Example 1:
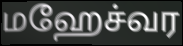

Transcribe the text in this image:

மஹேச்வர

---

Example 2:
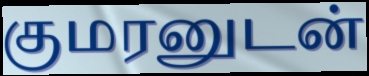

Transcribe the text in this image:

குமரனுடன்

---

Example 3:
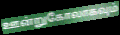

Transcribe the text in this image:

ஊன்றுகோலாகவும்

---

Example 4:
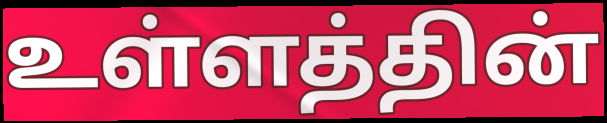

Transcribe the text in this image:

உள்ளத்தின்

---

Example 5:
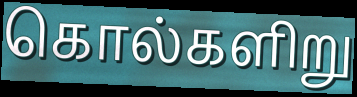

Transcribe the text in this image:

கொல்களிறு